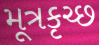
મૂત્રકૃચ્છ